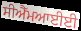
ਸੀਐੱਮਆਈਈ